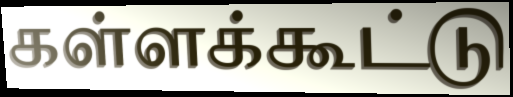
கள்ளக்கூட்டு